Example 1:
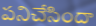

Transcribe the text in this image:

పనిచేసిందా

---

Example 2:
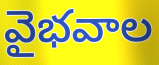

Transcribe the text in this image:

వైభవాల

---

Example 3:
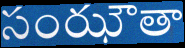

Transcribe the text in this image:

సంఝౌతా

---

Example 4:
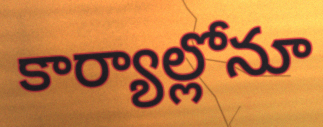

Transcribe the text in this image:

కార్యాల్లోనూ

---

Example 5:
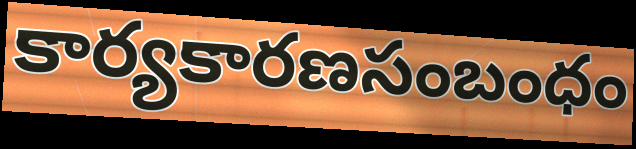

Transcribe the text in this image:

కార్యకారణసంబంధం